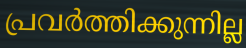
പ്രവർത്തിക്കുന്നില്ല